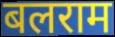
बलराम